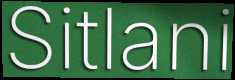
Sitlani